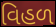
વિહળ